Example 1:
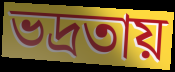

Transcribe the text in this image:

ভদ্রতায়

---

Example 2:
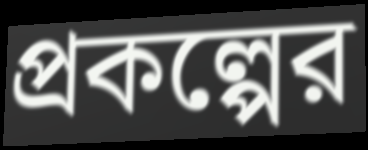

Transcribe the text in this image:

প্রকল্পের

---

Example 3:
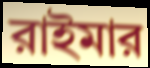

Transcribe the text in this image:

রাইমার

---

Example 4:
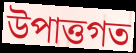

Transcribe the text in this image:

উপাত্তগত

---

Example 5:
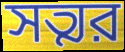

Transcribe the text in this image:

সত্মর